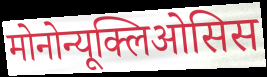
मोनोन्यूक्लिओसिस